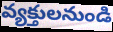
వ్యక్తులనుండి